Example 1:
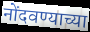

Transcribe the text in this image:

नोंदवण्याच्या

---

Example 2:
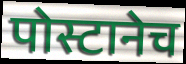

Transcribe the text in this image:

पोस्टानेच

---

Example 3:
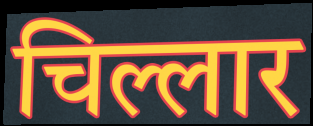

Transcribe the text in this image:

चिल्लार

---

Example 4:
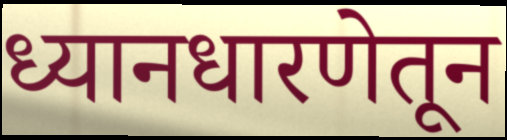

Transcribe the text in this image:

ध्यानधारणेतून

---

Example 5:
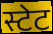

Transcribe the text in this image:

स्टेट